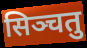
सिञ्चतु